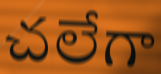
చలేగా